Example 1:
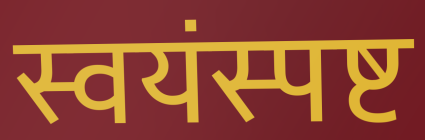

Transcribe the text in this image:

स्वयंस्पष्ट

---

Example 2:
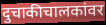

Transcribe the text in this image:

दुचाकीचालकांवर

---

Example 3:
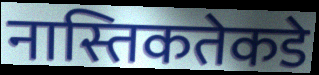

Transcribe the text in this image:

नास्तिकतेकडे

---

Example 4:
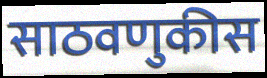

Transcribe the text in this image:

साठवणुकीस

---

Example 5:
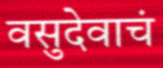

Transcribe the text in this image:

वसुदेवाचं